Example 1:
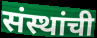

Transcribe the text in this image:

संस्थांची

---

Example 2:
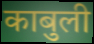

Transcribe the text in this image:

काबुली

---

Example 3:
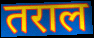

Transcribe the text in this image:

तराल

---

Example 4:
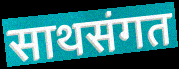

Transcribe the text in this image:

साथसंगत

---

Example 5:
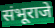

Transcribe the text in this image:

संभूराजे